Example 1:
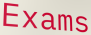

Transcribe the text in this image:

Exams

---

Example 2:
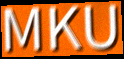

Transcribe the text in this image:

MKU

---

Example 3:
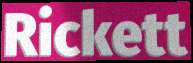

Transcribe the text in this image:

Rickett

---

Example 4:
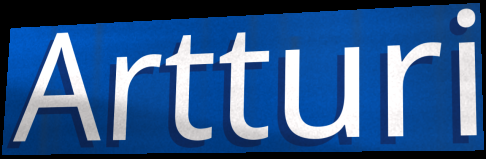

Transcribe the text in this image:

Artturi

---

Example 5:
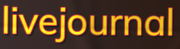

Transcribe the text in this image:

livejournal